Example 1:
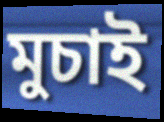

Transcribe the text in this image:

মুচাই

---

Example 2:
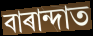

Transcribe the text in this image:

বাৰান্দাত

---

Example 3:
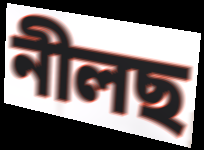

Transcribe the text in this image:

নীলছ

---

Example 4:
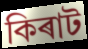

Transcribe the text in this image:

কিৰাট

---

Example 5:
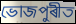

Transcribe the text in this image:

ভোজপুৰীত